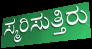
ಸ್ಮರಿಸುತ್ತಿರು